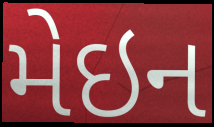
મેઇન